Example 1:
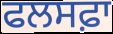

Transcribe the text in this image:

ਫਲਸਫ਼ਾ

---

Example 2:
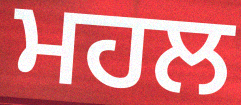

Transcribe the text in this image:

ਮਹਲ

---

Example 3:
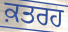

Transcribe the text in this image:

ਕ਼ਤਰਹ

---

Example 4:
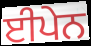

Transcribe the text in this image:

ਈਪੇਨ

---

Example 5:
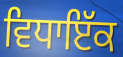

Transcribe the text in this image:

ਵਿਧਾਇੱਕ